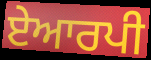
ਏਆਰਪੀ